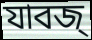
যাবজ্